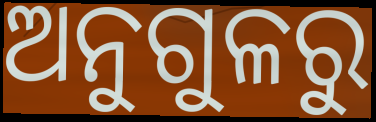
ଅନୁଗୁଳରୁ